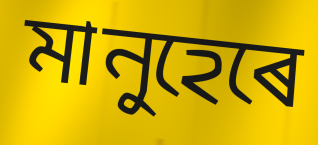
মানুহেৰে